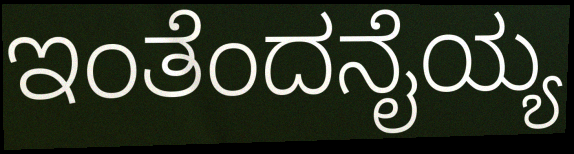
ಇಂತೆಂದನೈಯ್ಯ